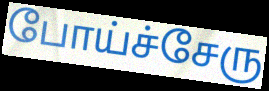
போய்ச்சேரு